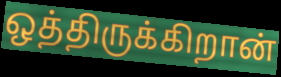
ஒத்திருக்கிறான்